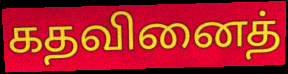
கதவினைத்